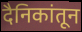
दैनिकांतून